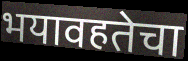
भयावहतेचा